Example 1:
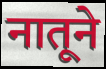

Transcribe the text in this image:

नातूने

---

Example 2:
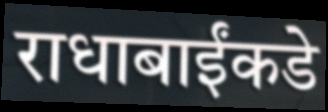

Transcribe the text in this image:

राधाबाईंकडे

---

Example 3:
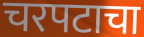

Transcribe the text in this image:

चरपटाचा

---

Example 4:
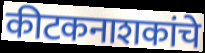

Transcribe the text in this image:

कीटकनाशकांचे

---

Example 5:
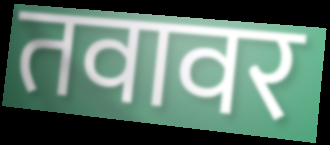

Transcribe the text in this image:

तवावर